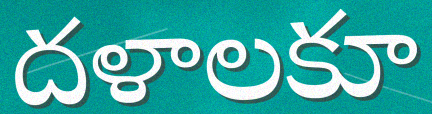
దళాలకూ